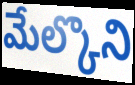
మేల్కొని